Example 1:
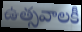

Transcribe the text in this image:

ఉత్సవాలకీ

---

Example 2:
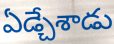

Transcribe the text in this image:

ఏడ్చేశాడు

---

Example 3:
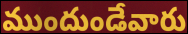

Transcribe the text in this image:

ముందుండేవారు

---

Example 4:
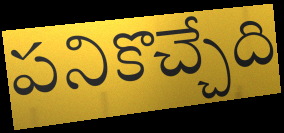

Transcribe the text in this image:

పనికొచ్చేది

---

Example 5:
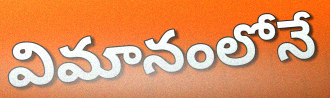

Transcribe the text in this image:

విమానంలోనే